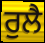
ਰੁਲੈ